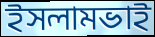
ইসলামভাই